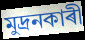
মুদ্ৰনকাৰী